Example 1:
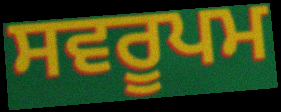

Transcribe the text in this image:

ਸਵਰੂਪਮ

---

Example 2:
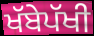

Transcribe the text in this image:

ਖੱਬੇਪੱਖੀ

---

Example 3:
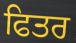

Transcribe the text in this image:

ਫਿਤਰ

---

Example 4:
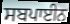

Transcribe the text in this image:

ਸਬਪਾਈਨ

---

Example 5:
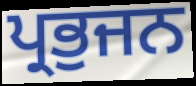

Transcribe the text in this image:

ਪ੍ਰਭੁਜਨ